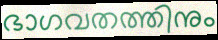
ഭാഗവതത്തിനും